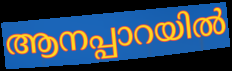
ആനപ്പാറയിൽ